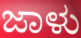
ಜಾಳು